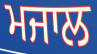
ਮਜਾਲ